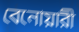
বেনোয়ারী